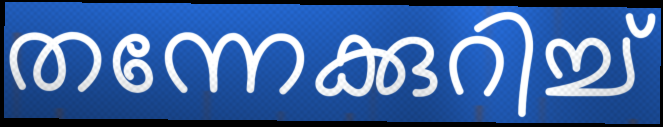
തന്നേക്കുറിച്ച്